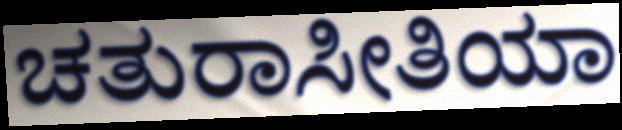
ಚತುರಾಸೀತಿಯಾ